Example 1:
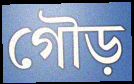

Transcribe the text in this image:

গৌড়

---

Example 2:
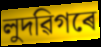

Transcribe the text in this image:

লুদৱিগৰে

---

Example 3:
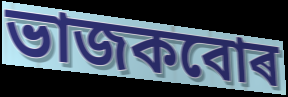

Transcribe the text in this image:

ভাজকবোৰ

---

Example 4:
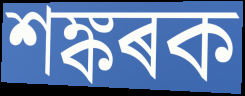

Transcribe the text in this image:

শঙ্কৰক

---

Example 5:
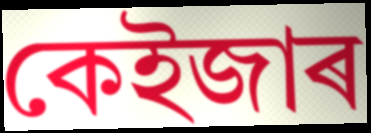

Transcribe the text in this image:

কেইজাৰ